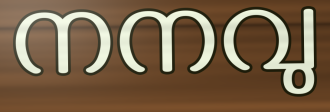
നനവു